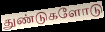
துண்டுகளோடு